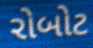
રોબોટ